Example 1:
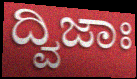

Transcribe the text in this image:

ದ್ವಿಜಾಃ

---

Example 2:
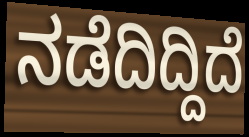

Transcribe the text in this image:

ನಡೆದಿದ್ದಿದೆ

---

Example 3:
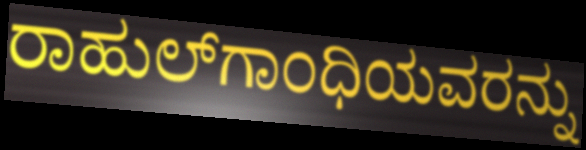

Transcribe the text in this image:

ರಾಹುಲ್‌ಗಾಂಧಿಯವರನ್ನು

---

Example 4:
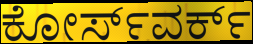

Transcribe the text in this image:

ಕೋರ್ಸ್‌ವರ್ಕ್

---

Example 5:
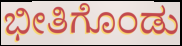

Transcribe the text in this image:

ಭೀತಿಗೊಂಡು